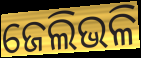
ଜେଲିଭଳି